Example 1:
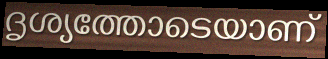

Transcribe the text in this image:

ദൃശ്യത്തോടെയാണ്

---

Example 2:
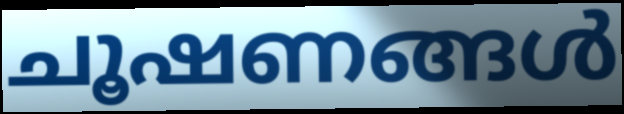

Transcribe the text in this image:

ചൂഷണങ്ങൾ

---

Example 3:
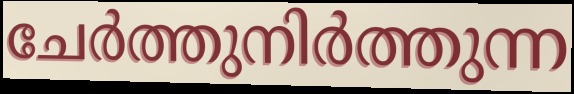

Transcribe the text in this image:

ചേർത്തുനിർത്തുന്ന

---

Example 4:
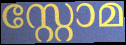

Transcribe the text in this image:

സ്റ്റോമ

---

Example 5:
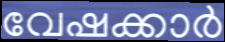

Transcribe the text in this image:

വേഷക്കാർ